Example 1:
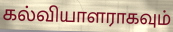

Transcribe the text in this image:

கல்வியாளராகவும்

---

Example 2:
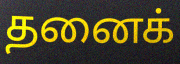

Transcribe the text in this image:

தனைக்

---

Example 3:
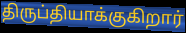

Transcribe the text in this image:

திருப்தியாக்குகிறார்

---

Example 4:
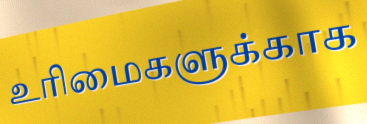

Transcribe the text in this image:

உரிமைகளுக்காக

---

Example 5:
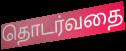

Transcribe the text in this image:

தொடர்வதை